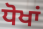
ਧੋਖਾਂ